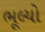
ભૂલ્યો